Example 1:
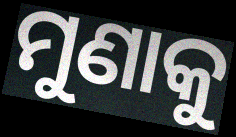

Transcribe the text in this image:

ମୁଣାକୁ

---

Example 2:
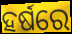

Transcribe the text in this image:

ହର୍ଷରେ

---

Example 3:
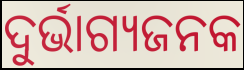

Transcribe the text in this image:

ଦୁର୍ଭାଗ୍ୟଜନକ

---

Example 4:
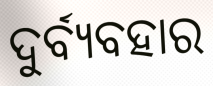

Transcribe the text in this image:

ଦୁର୍ବ୍ୟବହାର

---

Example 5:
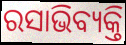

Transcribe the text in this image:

ରସାଭିବ୍ୟକ୍ତି